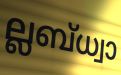
ല്ലബ്ധ്വാ